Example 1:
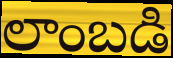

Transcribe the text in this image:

లాంబడి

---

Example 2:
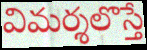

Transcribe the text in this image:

విమర్శలొస్తే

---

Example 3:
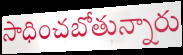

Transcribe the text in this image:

సాధించబోతున్నారు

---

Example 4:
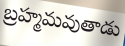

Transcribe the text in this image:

బ్రహ్మమవుతాడు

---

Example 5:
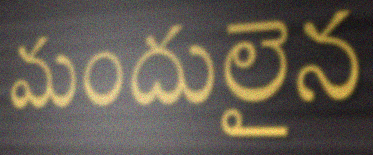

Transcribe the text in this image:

మందులైన